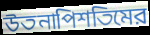
উতনাপিশতিমের